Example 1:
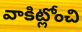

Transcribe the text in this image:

వాకిట్లోంచి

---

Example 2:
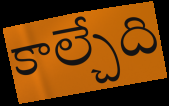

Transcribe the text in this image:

కాల్చేది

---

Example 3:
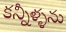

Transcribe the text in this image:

కన్నీళ్ళను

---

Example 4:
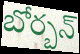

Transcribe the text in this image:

బోర్బన్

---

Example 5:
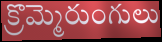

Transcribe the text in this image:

క్రొమ్మెరుంగులు